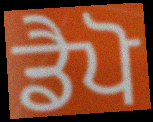
ਡੈਪੋ